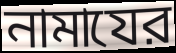
নামাযের